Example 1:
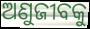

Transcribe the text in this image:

ଅଣୁଜୀବକୁ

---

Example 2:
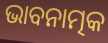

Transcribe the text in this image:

ଭାବନାତ୍ମକ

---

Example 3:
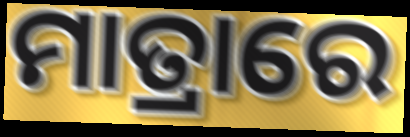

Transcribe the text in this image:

ମାତ୍ରାରେ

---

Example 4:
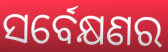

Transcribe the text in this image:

ସର୍ବେକ୍ଷଣର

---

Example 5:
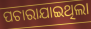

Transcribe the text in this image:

ପଚାରାଯାଇଥିଲା